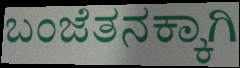
ಬಂಜೆತನಕ್ಕಾಗಿ